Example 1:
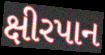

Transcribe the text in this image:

ક્ષીરપાન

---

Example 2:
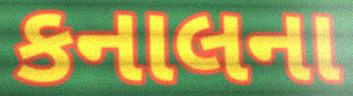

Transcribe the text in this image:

કનાલના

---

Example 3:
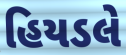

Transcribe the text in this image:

હિયડલે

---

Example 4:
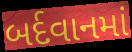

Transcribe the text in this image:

બર્દવાનમાં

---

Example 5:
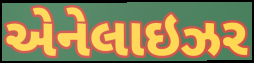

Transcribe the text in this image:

એનેલાઇઝર